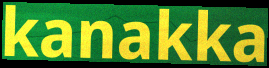
kanakka